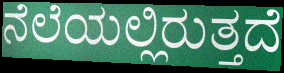
ನೆಲೆಯಲ್ಲಿರುತ್ತದೆ